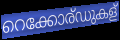
റെക്കോര്ഡുകള്